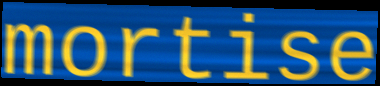
mortise